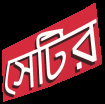
সেটির